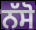
ਨੱਸੋ